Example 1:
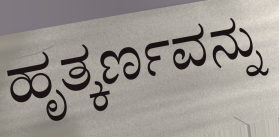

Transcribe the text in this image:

ಹೃತ್ಕರ್ಣವನ್ನು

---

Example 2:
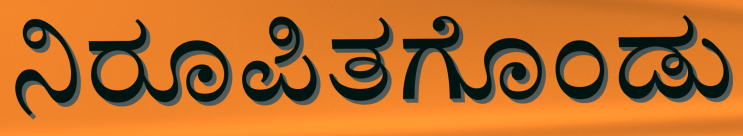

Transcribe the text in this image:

ನಿರೂಪಿತಗೊಂಡು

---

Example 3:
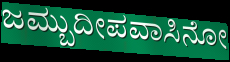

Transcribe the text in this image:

ಜಮ್ಬುದೀಪವಾಸಿನೋ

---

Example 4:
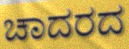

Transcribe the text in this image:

ಚಾದರದ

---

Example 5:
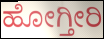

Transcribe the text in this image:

ಹೋಗ್ತೀರಿ